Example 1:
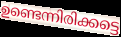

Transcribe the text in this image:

ഉണ്ടെന്നിരിക്കട്ടെ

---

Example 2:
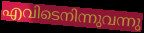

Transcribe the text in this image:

എവിടെനിന്നുവന്നു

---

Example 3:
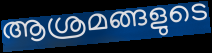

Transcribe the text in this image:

ആശ്രമങ്ങളുടെ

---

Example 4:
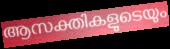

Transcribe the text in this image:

ആസക്തികളുടെയും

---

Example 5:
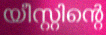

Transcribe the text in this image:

യീസ്റ്റിന്റെ